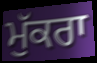
ਮੁੱਕਰਾ